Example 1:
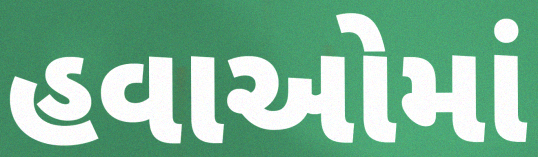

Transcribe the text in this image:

હવાઓમાં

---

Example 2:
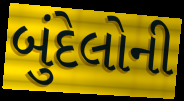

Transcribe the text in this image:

બુંદેલોની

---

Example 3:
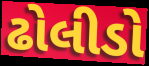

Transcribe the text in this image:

ઢોલીડો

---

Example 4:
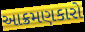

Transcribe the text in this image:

આક્રમણકારો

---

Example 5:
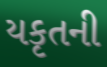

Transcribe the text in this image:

યકૃતની